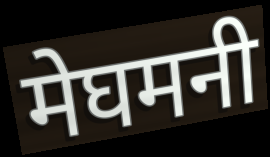
मेघमनी